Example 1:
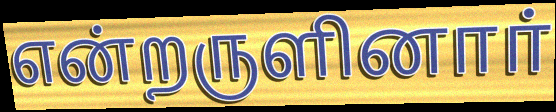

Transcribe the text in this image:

என்றருளினார்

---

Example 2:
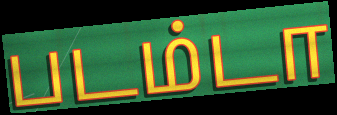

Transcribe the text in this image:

படம்டா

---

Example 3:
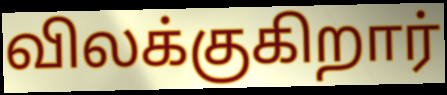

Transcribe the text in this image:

விலக்குகிறார்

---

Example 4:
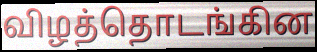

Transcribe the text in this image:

விழத்தொடங்கின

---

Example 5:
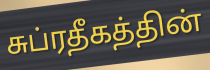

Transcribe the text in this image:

சுப்ரதீகத்தின்